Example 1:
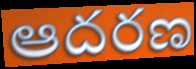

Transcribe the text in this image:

ఆదరణ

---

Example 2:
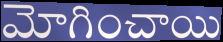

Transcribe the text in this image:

మోగించాయి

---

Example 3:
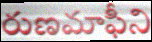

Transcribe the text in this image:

రుణమాఫీని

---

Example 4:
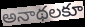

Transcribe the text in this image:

అనాథలకూ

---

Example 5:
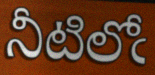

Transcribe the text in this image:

నీటిలోఁ